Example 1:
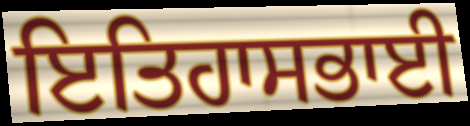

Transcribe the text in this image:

ਇਤਿਹਾਸਭਾਈ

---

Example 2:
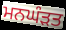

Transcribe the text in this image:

ਮਨਘੰੜਤ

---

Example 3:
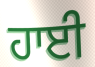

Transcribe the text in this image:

ਹਾਈ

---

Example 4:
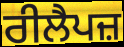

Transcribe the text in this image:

ਰੀਲੈਪਜ਼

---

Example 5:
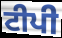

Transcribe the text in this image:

ਟੀਪੀ